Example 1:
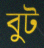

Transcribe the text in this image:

বুট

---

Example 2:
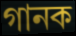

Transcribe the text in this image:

গানক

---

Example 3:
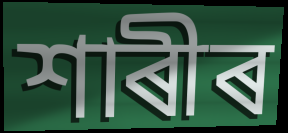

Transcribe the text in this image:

শাৰীৰ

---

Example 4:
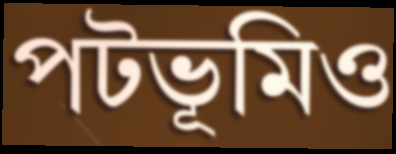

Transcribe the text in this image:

পটভূমিও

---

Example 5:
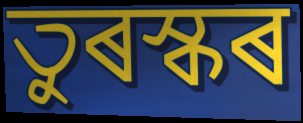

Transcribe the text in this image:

তুৰস্কৰ